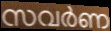
സവർണ